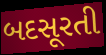
બદસૂરતી